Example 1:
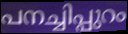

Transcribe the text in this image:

പനച്ചിപ്പുറം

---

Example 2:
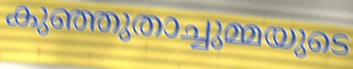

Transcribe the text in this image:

കുഞ്ഞുതാച്ചുമ്മയുടെ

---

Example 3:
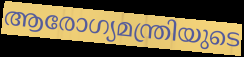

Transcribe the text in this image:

ആരോഗ്യമന്ത്രിയുടെ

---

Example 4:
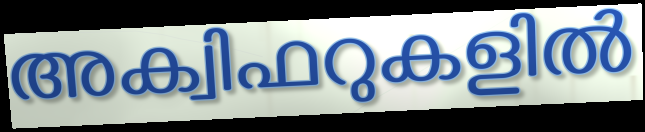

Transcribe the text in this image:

അക്വിഫറുകളിൽ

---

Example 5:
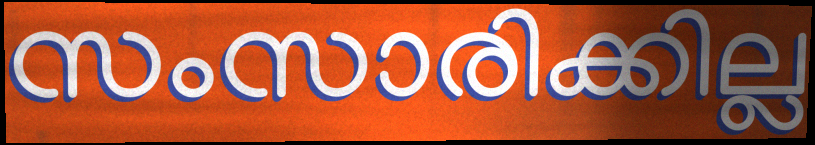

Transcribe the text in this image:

സംസാരിക്കില്ല